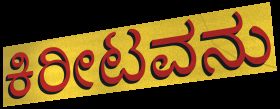
ಕಿರೀಟವನು